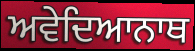
ਅਵੇਦਿਆਨਾਥ